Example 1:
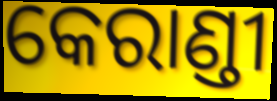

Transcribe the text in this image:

କେରାଣ୍ଡୀ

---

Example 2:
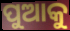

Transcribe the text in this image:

ପୁଆକୁ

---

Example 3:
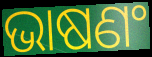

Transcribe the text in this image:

ଭାଷଣଂ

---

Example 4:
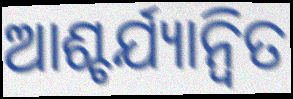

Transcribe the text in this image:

ଆଶ୍ଚର୍ଯ୍ୟାନ୍ୱିତ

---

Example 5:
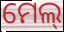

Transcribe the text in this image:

ମେଲ୍